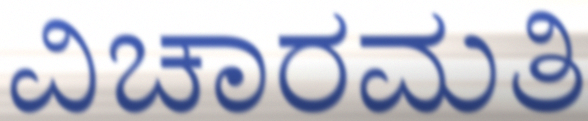
ವಿಚಾರಮತಿ